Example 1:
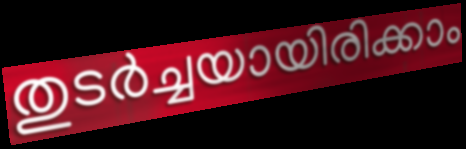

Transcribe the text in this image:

തുടർച്ചയായിരിക്കാം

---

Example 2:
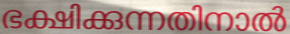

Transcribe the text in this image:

ഭക്ഷിക്കുന്നതിനാൽ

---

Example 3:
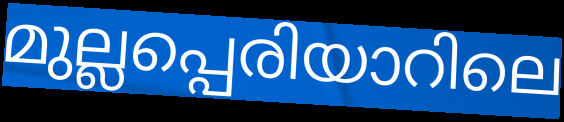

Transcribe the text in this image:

മുല്ലപ്പെരിയാറിലെ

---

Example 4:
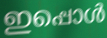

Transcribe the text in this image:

ഇപ്പൊൾ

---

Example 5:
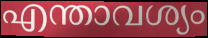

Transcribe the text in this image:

എന്താവശ്യം